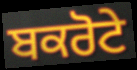
ਬਕਰੋਟੇ